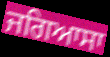
ਜਗਿਆਸਾ